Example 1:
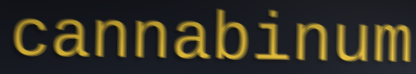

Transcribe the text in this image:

cannabinum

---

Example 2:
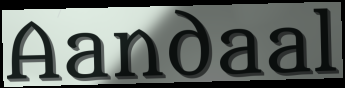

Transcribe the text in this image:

Aandaal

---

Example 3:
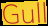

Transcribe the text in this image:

Gull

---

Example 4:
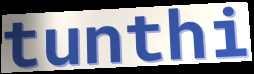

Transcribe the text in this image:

tunthi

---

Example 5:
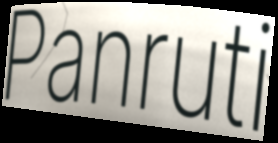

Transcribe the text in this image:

Panruti